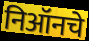
निऑनचे